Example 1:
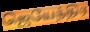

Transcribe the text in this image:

ஜெயேந்திர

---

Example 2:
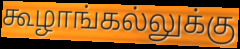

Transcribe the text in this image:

கூழாங்கல்லுக்கு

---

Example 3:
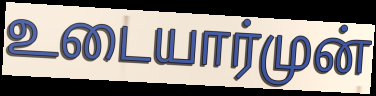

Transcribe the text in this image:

உடையார்முன்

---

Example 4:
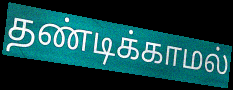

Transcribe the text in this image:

தண்டிக்காமல்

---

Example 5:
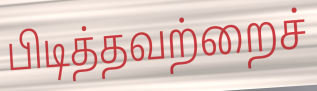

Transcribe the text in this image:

பிடித்தவற்றைச்